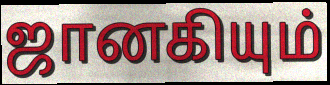
ஜானகியும்